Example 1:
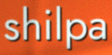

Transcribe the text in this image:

shilpa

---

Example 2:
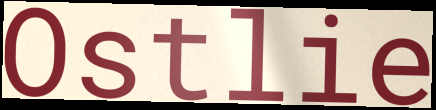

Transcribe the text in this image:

Ostlie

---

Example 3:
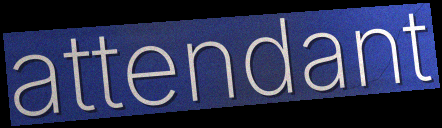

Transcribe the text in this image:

attendant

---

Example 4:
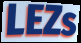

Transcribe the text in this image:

LEZs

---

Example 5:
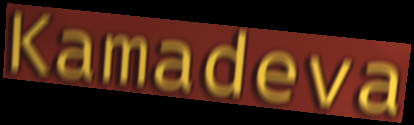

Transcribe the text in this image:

Kamadeva